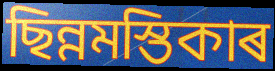
ছিন্নমস্তিকাৰ